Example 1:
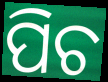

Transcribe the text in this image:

ପିଚ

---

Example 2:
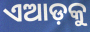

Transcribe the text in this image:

ଏଆଡ଼କୁ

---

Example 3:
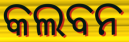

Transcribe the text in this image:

କଲବନ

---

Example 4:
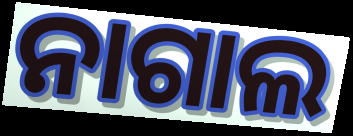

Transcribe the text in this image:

ନାଗାଲ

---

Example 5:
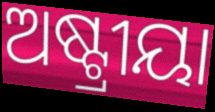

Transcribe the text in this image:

ଅଷ୍ଟ୍ରୀୟା